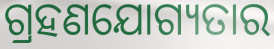
ଗ୍ରହଣଯୋଗ୍ୟତାର